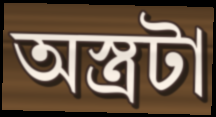
অস্ত্রটা